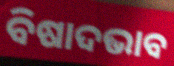
ବିଷାଦଭାବ